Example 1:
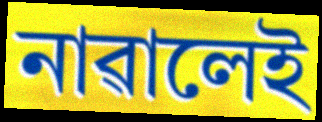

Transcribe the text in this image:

নাৱালেই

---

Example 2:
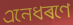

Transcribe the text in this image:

এনেধৰণে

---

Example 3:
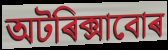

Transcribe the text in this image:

অটৰিক্সাবোৰ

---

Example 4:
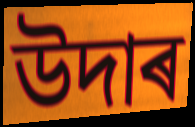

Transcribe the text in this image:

উদাৰ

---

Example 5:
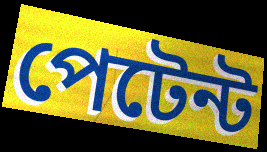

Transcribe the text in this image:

পেটেন্ট